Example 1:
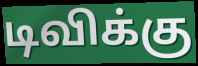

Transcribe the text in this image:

டிவிக்கு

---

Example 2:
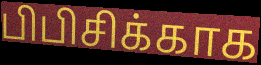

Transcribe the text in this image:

பிபிசிக்காக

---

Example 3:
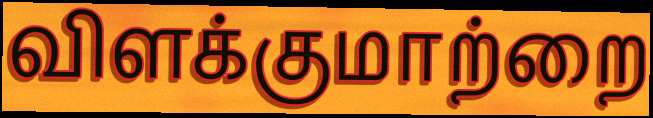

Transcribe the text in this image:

விளக்குமாற்றை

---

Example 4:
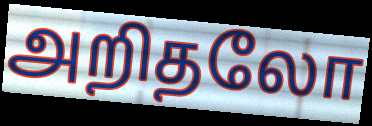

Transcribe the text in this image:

அறிதலோ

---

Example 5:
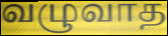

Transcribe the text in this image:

வழுவாத